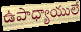
ఉపాధ్యాయులే